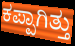
ಕಪ್ಪಾಗಿತ್ತು